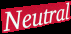
Neutral